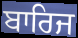
ਬਾਰਿਜ